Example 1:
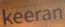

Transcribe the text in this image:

keeran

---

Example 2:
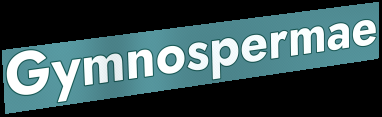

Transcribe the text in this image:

Gymnospermae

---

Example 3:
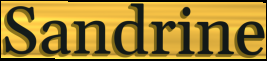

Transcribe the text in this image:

Sandrine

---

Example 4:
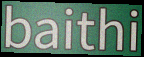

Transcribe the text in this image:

baithi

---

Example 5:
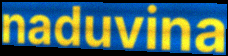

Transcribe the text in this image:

naduvina